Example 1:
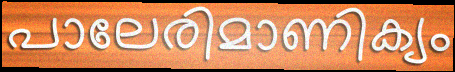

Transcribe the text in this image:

പാലേരിമാണിക്യം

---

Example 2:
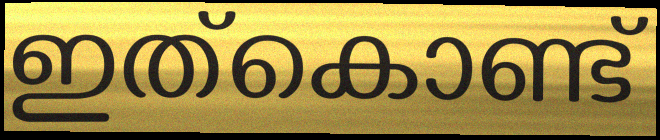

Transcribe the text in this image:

ഇത്കൊണ്ട്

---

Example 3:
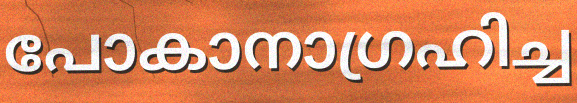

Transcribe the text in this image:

പോകാനാഗ്രഹിച്ച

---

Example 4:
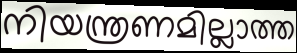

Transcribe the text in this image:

നിയന്ത്രണമില്ലാത്ത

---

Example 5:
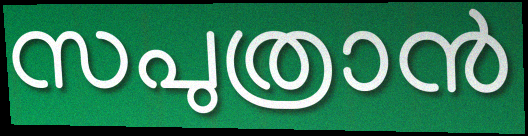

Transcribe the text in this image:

സപുത്രാൻ